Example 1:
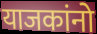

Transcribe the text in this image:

याजकांनो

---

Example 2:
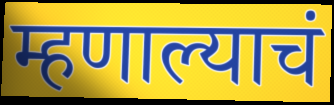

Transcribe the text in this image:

म्हणाल्याचं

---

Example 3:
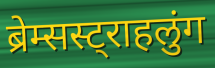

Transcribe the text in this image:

ब्रेम्सस्ट्राहलुंग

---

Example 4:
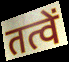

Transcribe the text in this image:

तत्वें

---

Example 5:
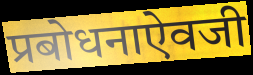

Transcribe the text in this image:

प्रबोधनाऐवजी